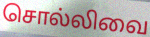
சொல்லிவை